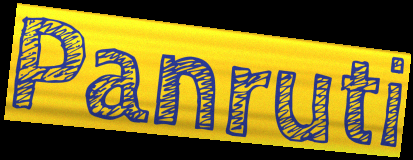
Panruti